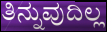
ತಿನ್ನುವುದಿಲ್ಲ